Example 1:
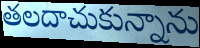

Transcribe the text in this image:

తలదాచుకున్నాను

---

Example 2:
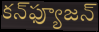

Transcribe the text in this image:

కన్‌ఫ్యూజన్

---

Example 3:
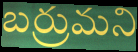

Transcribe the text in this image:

బర్రుమని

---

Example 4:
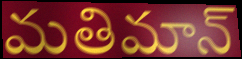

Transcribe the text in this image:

మతిమాన్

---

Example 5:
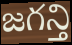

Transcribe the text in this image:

జగన్తి